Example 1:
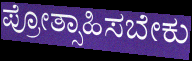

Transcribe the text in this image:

ಪ್ರೋತ್ಸಾಹಿಸಬೇಕು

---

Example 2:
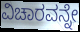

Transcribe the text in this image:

ವಿಚಾರವನ್ನೇ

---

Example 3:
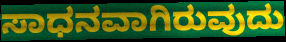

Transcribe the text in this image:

ಸಾಧನವಾಗಿರುವುದು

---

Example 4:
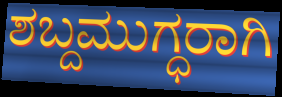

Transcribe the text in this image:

ಶಬ್ದಮುಗ್ಧರಾಗಿ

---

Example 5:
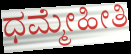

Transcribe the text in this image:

ಧಮ್ಮೇಹೀತಿ